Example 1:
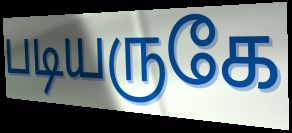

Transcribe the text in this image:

படியருகே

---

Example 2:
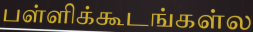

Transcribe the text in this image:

பள்ளிக்கூடங்கள்ல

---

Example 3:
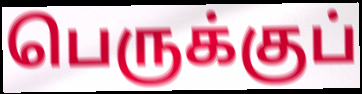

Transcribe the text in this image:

பெருக்குப்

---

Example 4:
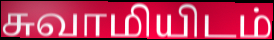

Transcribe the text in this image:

சுவாமியிடம்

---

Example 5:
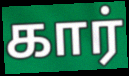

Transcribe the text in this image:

கார்